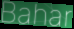
Bahar